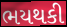
ભયથકી